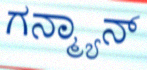
ಗನ್ಮ್ಯಾನ್